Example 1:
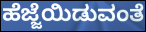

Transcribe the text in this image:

ಹೆಜ್ಜೆಯಿಡುವಂತೆ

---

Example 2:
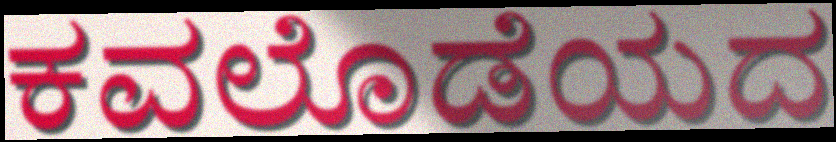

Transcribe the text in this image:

ಕವಲೊಡೆಯದ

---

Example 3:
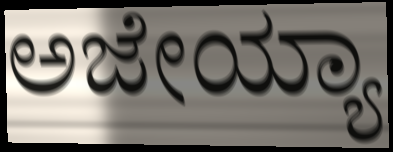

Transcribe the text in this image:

ಅಜೇಯ್ಯಾ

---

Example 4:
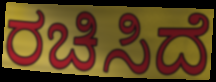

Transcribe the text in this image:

ರಚಿಸಿದೆ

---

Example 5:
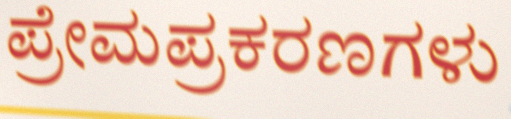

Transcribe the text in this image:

ಪ್ರೇಮಪ್ರಕರಣಗಳು